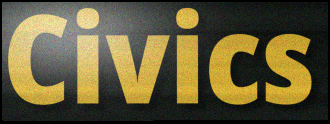
Civics